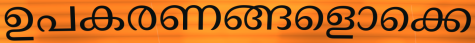
ഉപകരണങ്ങളൊക്കെ